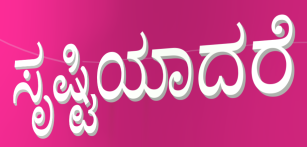
ಸೃಷ್ಟಿಯಾದರೆ